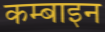
कम्बाइन